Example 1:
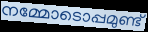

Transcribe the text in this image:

നമ്മോടൊപ്പമുണ്ട്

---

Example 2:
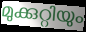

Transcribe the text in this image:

മുക്കുറ്റിയും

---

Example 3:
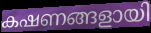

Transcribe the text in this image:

കഷണങ്ങളായി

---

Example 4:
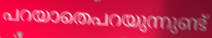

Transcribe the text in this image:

പറയാതെപറയുന്നുണ്ട്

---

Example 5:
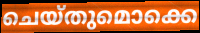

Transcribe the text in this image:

ചെയ്തുമൊക്കെ